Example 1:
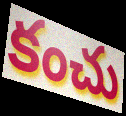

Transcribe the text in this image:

కంచు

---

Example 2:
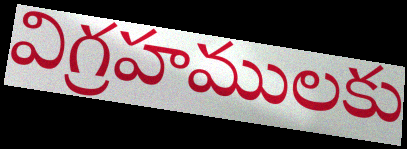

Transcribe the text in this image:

విగ్రహములకు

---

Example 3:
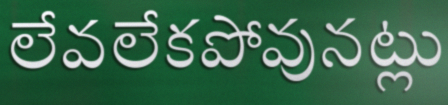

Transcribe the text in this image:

లేవలేకపోవునట్లు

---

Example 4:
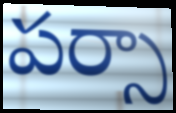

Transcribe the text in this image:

పర్సా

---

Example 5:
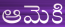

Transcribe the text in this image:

ఆమెకి